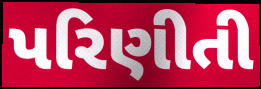
પરિણીતી